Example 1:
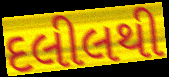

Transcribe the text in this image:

દલીલથી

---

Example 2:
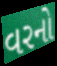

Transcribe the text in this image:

વરનો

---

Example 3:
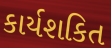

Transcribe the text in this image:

કાર્યશકિત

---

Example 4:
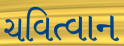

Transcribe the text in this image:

ચવિત્વાન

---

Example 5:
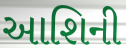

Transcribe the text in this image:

આશિની